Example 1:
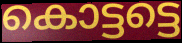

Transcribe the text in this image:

കൊട്ടട്ടെ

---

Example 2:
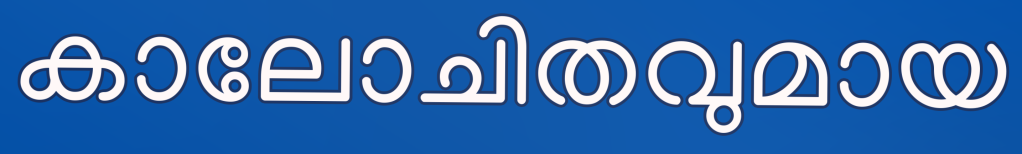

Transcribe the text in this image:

കാലോചിതവുമായ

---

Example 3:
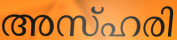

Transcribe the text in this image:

അസ്ഹരി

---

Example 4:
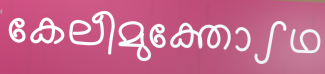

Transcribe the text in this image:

കേലീമുക്തോഽഥ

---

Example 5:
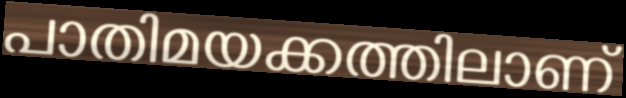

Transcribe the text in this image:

പാതിമയക്കത്തിലാണ്